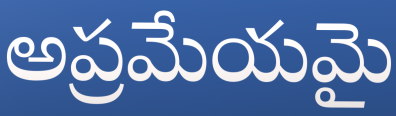
అప్రమేయమై